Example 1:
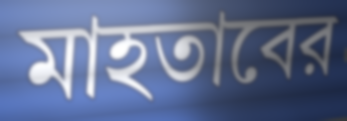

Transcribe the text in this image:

মাহতাবের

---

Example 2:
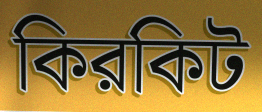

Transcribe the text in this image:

কিরকিট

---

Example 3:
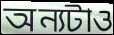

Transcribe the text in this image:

অন্যটাও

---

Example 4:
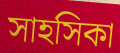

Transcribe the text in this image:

সাহসিকা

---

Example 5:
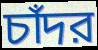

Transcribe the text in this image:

চাঁদর